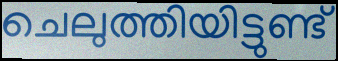
ചെലുത്തിയിട്ടുണ്ട്